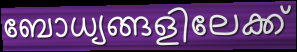
ബോധ്യങ്ങളിലേക്ക്